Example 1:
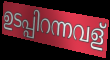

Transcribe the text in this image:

ഉടപ്പിറന്നവള്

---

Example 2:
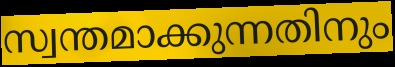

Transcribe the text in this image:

സ്വന്തമാക്കുന്നതിനും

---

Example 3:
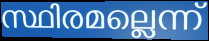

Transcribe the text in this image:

സ്ഥിരമല്ലെന്ന്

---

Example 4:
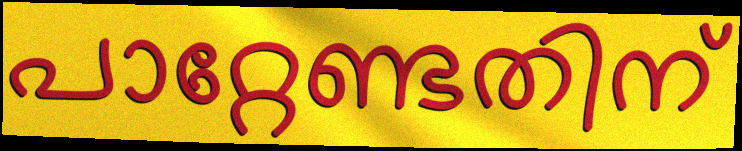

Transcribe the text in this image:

പാറ്റേണ്ടതിന്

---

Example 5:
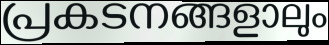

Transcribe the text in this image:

പ്രകടനങ്ങളാലും